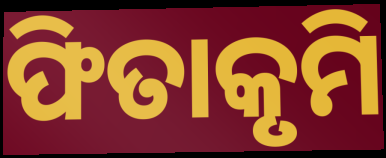
ଫିତାକୃମି